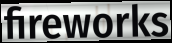
fireworks